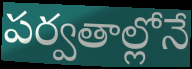
పర్వతాల్లోనే